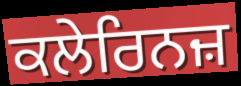
ਕਲੇਰਿਨਜ਼